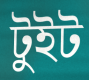
টুইট